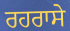
ਰਹਰਾਸੇ